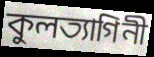
কুলত্যাগিনী